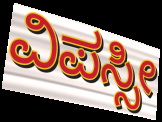
ವಿಪಸ್ಸೀ